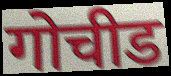
गोचीड